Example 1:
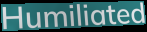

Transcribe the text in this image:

Humiliated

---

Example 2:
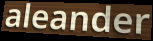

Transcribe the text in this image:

aleander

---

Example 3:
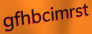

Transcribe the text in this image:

gfhbcimrst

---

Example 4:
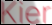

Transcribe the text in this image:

Kier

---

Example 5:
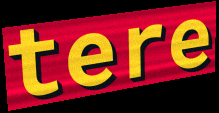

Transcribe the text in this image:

tere